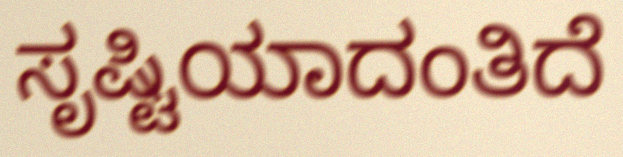
ಸೃಷ್ಟಿಯಾದಂತಿದೆ